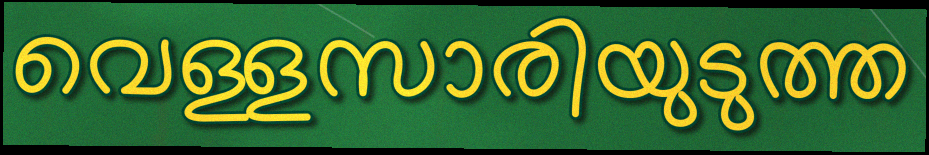
വെള്ളസാരിയുടുത്ത